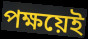
পক্ষয়েই